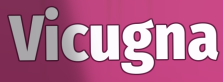
Vicugna